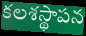
కలశస్థాపన